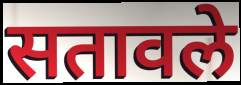
सतावले